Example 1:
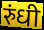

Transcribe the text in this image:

रुंधी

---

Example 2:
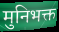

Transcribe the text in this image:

मुनिभक्त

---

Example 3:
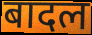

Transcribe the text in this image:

बादल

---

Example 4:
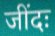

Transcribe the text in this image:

जींदः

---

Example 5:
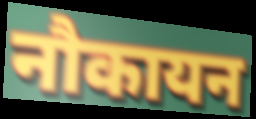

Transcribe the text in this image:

नौकायन